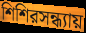
শিশিরসন্ধ্যায়